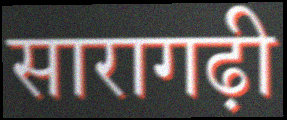
सारागढ़ी